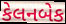
કેલનબેક